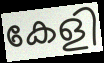
കേളി